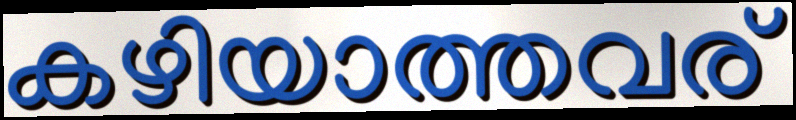
കഴിയാത്തവര്